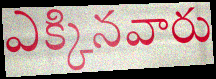
ఎక్కినవారు